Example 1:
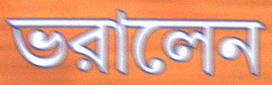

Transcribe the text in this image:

ভরালেন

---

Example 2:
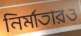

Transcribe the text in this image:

নির্মাতারও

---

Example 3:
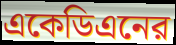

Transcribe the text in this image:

একেডিএনের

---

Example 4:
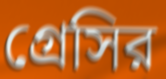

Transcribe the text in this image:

গ্রেসির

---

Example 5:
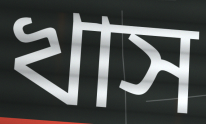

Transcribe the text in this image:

খাস